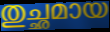
തുച്ഛമായ